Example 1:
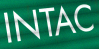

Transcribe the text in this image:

INTAC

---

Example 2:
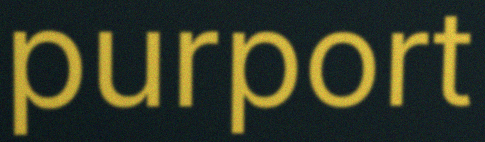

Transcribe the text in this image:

purport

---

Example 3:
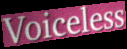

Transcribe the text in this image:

Voiceless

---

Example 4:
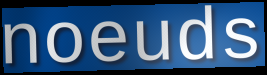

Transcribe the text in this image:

noeuds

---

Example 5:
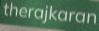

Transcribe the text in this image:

therajkaran